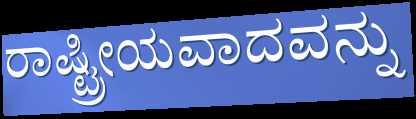
ರಾಷ್ಟ್ರೀಯವಾದವನ್ನು